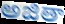
అజితా